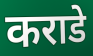
कराडे